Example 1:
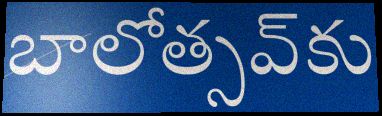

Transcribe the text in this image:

బాలోత్సవ్‌కు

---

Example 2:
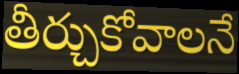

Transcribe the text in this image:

తీర్చుకోవాలనే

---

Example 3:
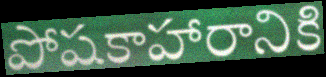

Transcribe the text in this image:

పోషకాహారానికి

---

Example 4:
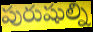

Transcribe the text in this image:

పురుషుల్ని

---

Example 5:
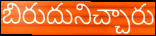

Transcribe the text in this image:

బిరుదునిచ్చారు